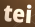
tei